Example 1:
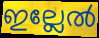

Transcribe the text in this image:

ഇല്ലേൽ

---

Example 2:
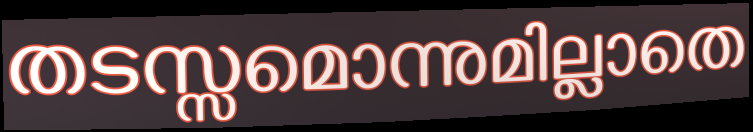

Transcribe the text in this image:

തടസ്സമൊന്നുമില്ലാതെ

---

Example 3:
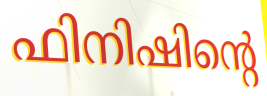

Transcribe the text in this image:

ഫിനിഷിന്റെ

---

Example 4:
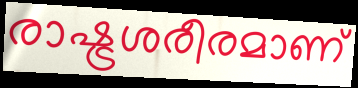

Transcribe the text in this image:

രാഷ്ട്രശരീരമാണ്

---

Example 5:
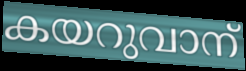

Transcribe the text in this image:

കയറുവാന്